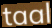
taal